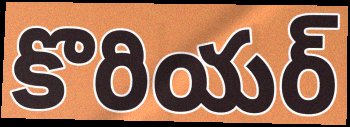
కొరియర్